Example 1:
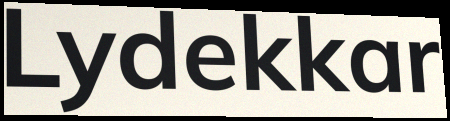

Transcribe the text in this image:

Lydekkar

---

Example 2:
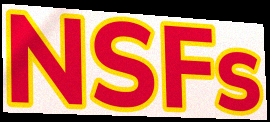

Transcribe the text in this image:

NSFs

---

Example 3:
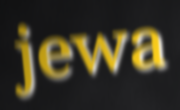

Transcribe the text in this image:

jewa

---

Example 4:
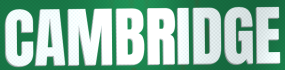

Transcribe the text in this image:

CAMBRIDGE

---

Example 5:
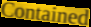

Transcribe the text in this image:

Contained